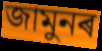
জামুনৰ